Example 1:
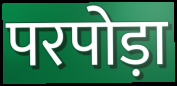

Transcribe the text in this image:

परपोड़ा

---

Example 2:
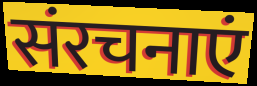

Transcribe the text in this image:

संरचनाएं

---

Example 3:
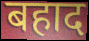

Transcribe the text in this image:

बहाद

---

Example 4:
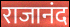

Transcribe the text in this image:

राजानंद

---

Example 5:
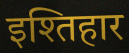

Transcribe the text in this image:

इश्तिहार